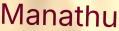
Manathu